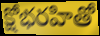
క్షోభరహితో